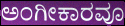
ಅಂಗೀಕಾರವೂ